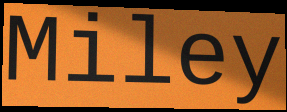
Miley